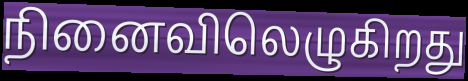
நினைவிலெழுகிறது